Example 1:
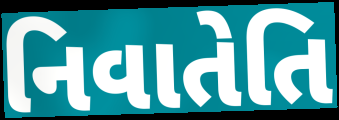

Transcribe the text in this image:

નિવાતેતિ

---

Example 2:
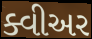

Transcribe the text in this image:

ક્વીઅર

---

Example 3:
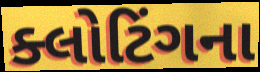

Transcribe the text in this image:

ક્લોટિંગના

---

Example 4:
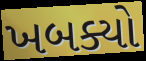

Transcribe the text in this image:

ખબક્યો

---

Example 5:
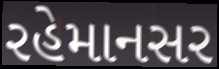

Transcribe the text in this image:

રહેમાનસર